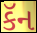
કૅન